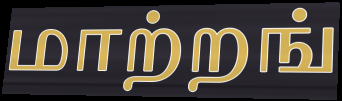
மாற்றங்